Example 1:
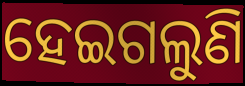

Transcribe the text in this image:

ହେଇଗଲୁଣି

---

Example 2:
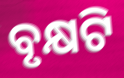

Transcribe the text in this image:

ବୃକ୍ଷଟି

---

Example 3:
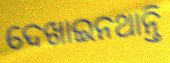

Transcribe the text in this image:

ଦେଖାଇନଥାନ୍ତି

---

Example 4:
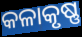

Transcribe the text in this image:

କଳାକୃଷ୍ଣ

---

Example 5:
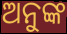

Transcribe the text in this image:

ଅନୁଙ୍କ